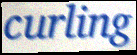
curling